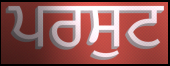
ਪਰਸੁਟ